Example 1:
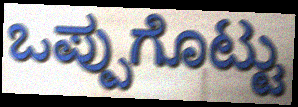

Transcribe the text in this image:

ಒಪ್ಪುಗೊಟ್ಟು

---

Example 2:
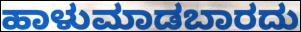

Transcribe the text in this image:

ಹಾಳುಮಾಡಬಾರದು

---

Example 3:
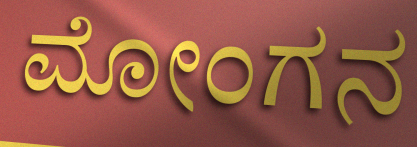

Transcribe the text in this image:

ಮೋಂಗನ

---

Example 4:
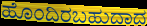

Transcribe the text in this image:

ಹೊಂದಿರಬಹುದಾದ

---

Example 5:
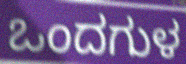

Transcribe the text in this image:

ಒಂದಗುಳ